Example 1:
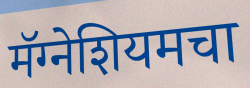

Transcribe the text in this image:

मॅग्नेशियमचा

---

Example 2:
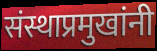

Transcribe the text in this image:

संस्थाप्रमुखांनी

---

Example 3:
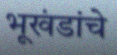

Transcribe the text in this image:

भूखंडांचे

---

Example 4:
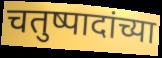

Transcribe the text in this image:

चतुष्पादांच्या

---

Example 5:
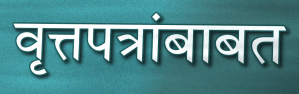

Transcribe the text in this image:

वृत्तपत्रांबाबत